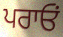
ਪਰਾਓਂ